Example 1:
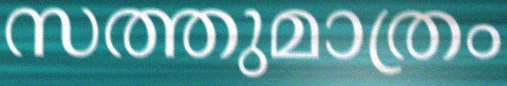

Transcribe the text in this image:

സത്തുമാത്രം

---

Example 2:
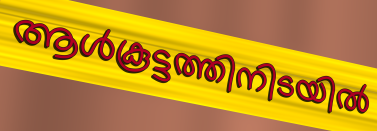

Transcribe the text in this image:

ആൾകൂട്ടത്തിനിടയിൽ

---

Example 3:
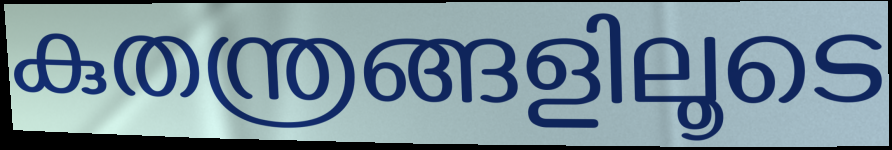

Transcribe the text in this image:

കുതന്ത്രങ്ങളിലൂടെ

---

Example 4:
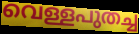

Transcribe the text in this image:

വെള്ളപുതച്ച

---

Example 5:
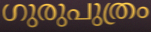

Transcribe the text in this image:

ഗുരുപുത്രം